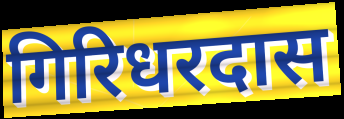
गिरिधरदास